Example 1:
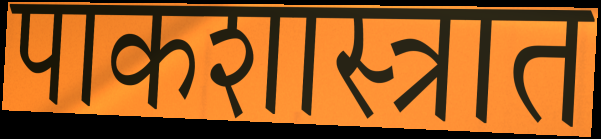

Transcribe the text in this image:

पाकशास्त्रात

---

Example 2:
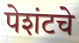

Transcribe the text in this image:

पेशंटचे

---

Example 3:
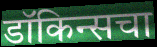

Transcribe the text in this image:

डॉकिन्सचा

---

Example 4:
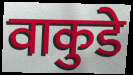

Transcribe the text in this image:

वाकुडे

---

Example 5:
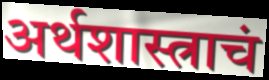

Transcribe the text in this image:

अर्थशास्त्राचं